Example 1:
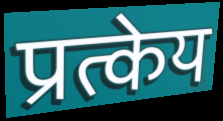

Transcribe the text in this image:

प्रत्केय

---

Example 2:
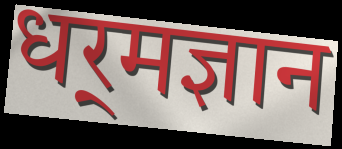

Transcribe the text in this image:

धर्मज्ञान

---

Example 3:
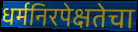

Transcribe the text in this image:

धर्मनिरपेक्षतेचा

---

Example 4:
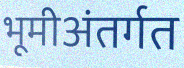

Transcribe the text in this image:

भूमीअंतर्गत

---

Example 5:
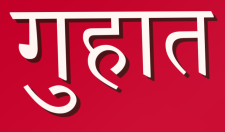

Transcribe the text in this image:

गुहात